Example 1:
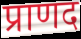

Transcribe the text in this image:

प्राणद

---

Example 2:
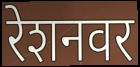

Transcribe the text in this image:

रेशनवर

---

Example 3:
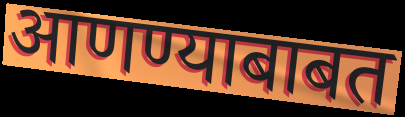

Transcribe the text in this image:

आणण्याबाबत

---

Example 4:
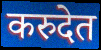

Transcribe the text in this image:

करुदेत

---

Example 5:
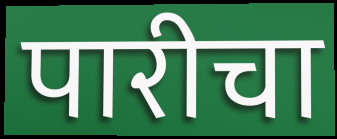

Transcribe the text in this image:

पारीचा